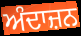
ਅੰਦਾਜ਼ਨ